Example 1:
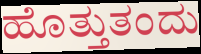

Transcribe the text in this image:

ಹೊತ್ತುತಂದು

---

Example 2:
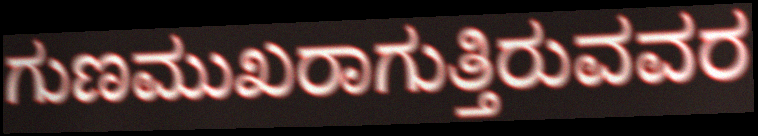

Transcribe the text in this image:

ಗುಣಮುಖರಾಗುತ್ತಿರುವವರ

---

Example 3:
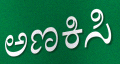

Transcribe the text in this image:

ಅಣಕಿಸಿ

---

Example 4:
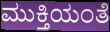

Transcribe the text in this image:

ಮುಕ್ತಿಯಂತೆ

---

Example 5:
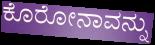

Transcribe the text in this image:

ಕೊರೋನಾವನ್ನು